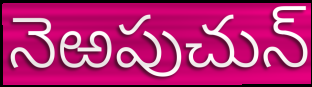
నెఱపుచున్